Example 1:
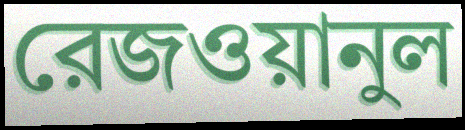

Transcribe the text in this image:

রেজওয়ানুল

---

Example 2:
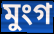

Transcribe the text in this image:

মুংগ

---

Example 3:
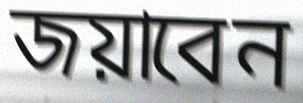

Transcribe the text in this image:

জয়াবেন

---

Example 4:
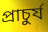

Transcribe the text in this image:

প্রাচুর্য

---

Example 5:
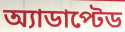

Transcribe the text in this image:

অ্যাডাপ্টেড